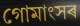
গোমাংসৰ